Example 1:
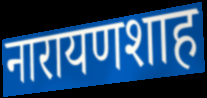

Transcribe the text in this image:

नारायणशाह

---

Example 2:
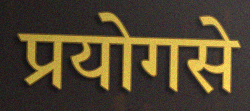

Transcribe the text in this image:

प्रयोगसे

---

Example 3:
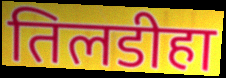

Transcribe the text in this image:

तिलडीहा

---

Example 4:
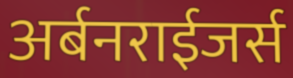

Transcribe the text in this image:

अर्बनराईजर्स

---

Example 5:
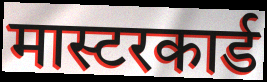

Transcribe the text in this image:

मास्टरकार्ड